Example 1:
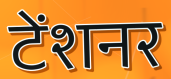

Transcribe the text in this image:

टेंशनर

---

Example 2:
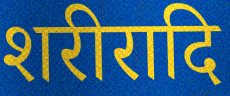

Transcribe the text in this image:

शरीरादि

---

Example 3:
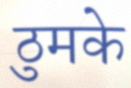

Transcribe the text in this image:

ठुमके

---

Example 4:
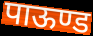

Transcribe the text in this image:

पाऊण्ड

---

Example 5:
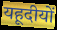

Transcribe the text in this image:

यहूदीयों